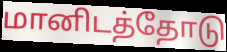
மானிடத்தோடு